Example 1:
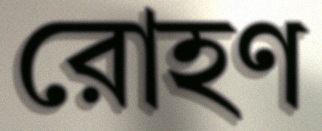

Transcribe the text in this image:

রোহণ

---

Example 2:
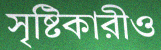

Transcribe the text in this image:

সৃষ্টিকারীও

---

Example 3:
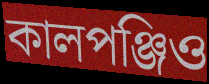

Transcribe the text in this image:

কালপঞ্জিও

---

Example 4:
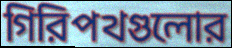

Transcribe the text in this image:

গিরিপথগুলোর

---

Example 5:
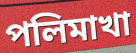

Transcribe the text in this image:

পলিমাখা